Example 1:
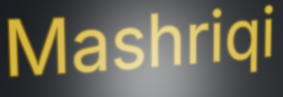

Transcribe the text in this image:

Mashriqi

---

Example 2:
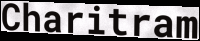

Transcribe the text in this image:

Charitram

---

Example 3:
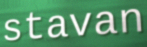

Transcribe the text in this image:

stavan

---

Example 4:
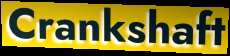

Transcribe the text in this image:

Crankshaft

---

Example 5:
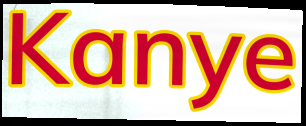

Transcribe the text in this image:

Kanye